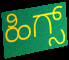
ಹಿಗ್ಸ್